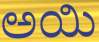
ಅಯಿ